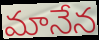
మానేన